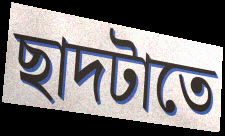
ছাদটাতে